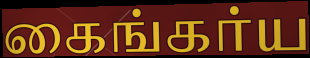
கைங்கர்ய